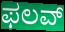
ಫಲವ್